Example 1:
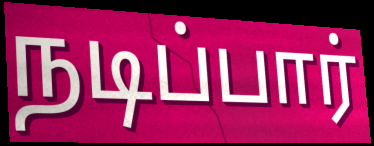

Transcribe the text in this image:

நடிப்பார்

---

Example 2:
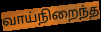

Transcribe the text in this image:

வாய்நிறைந்த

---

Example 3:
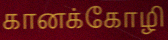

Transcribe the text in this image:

கானக்கோழி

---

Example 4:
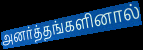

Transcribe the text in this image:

அனர்த்தங்களினால்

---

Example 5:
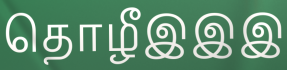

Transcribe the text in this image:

தொழீஇஇஇ